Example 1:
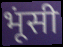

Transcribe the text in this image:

भूंसी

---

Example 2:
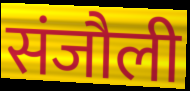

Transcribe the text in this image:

संजौली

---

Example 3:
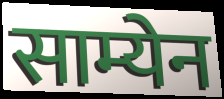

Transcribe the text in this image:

साम्येन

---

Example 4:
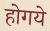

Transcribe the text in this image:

होगये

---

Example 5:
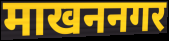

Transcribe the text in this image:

माखननगर